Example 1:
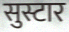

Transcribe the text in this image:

सुस्टार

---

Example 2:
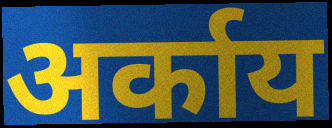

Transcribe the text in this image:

अर्काय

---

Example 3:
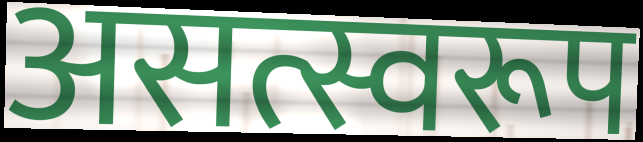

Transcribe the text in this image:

असत्स्वरूप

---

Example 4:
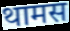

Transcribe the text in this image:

थामस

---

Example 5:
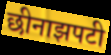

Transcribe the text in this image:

छीनाझपटी